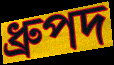
ধ্ৰুপদ